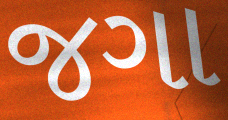
જગા